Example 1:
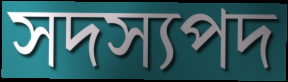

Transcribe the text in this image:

সদস্যপদ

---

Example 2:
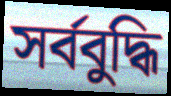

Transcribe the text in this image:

সৰ্ববুদ্ধি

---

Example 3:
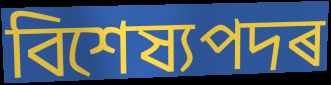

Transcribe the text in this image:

বিশেষ্যপদৰ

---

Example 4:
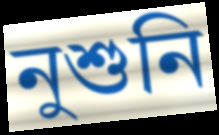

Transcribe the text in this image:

নুশুনি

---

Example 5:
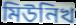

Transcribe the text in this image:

মিউনিখ